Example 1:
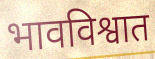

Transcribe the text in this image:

भावविश्वात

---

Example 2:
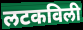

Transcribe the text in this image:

लटकविली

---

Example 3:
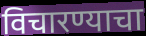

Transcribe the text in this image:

विचारण्याचा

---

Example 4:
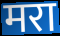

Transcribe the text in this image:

मरा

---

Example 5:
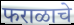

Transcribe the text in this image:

फराळाचे